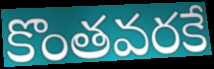
కొంతవరకే